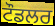
ਟੌਡਲਰ